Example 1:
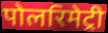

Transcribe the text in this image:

पोलरिमेट्री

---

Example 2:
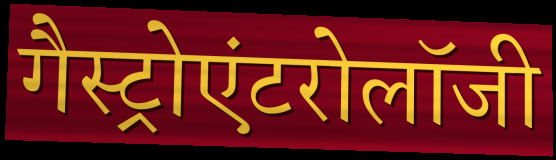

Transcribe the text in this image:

गैस्ट्रोएंटरोलॉजी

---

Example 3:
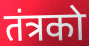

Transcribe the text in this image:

तंत्रको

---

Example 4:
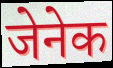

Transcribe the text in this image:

जेनेक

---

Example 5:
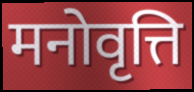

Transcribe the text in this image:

मनोवृत्ति